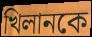
খিলানকে